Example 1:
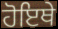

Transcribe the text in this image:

ਹੋਇਥੇ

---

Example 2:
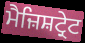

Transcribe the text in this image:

ਮੈਜ਼ਿਸ਼ਟ੍ਰੇਟ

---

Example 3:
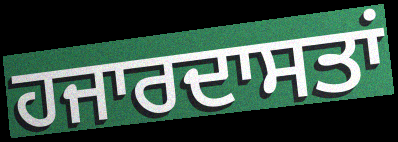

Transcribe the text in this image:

ਹਜਾਰਦਾਸਤਾਂ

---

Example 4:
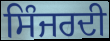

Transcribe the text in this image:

ਸਿੰਜਰਦੀ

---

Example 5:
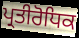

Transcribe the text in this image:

ਪ੍ਰਤੀਰੋਧਿਕ